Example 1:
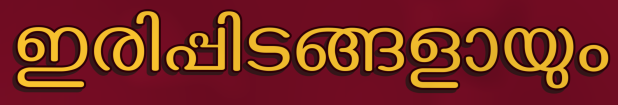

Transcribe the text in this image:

ഇരിപ്പിടങ്ങളായും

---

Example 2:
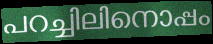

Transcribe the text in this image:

പറച്ചിലിനൊപ്പം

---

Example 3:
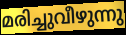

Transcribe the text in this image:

മരിച്ചുവീഴുന്നു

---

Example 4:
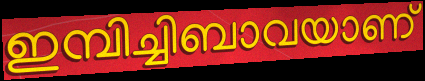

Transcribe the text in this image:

ഇമ്പിച്ചിബാവയാണ്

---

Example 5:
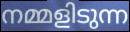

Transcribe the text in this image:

നമ്മളിടുന്ന